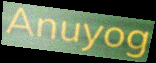
Anuyog